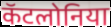
कॅटलोनिया